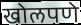
खोलपणे